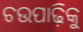
ଚଉପାଢ଼ିକୁ